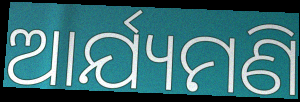
ଆର୍ଯ୍ୟମଣି